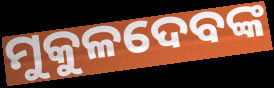
ମୁକୁଳଦେବଙ୍କ